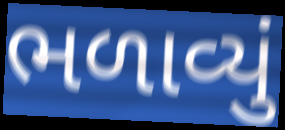
ભળાવ્યું